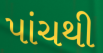
પાંચથી